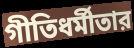
গীতিধর্মীতার